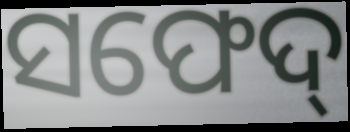
ସଫେଦ୍